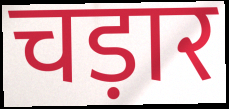
चड़ार